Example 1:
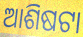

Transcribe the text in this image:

ଆଶିଷଟା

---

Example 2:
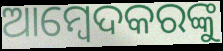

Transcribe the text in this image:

ଆମ୍ବେଦକରଙ୍କୁ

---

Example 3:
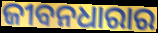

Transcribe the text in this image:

ଜୀବନଧାରାର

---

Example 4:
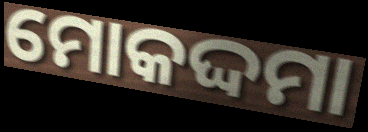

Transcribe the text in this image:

ମୋକଦ୍ଦମା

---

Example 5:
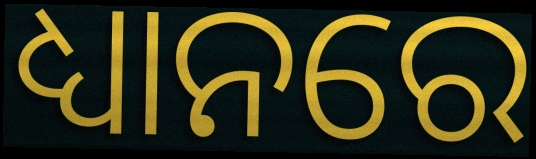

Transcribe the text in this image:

ଧ୍ୟାନରେ